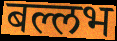
बल्लभ